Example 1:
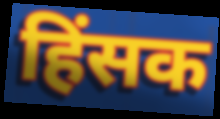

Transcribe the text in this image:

हिंसक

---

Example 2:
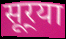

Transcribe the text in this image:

सूर्या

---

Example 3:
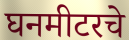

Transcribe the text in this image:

घनमीटरचे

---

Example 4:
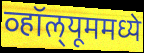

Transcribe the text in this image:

व्हॉल्यूममध्ये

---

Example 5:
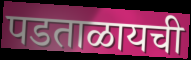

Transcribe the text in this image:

पडताळायची